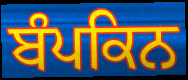
ਬੰਪਕਿਨ